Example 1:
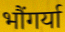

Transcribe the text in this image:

भौंगर्या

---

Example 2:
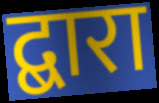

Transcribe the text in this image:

द्बारा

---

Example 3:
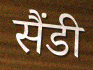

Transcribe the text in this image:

सैंडी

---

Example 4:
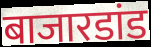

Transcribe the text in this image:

बाजारडांड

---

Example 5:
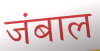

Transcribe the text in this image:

जंबाल